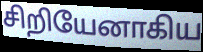
சிறியேனாகிய